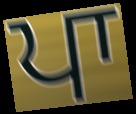
ਪਾ